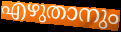
എഴുതാനും